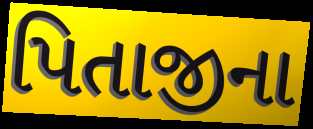
પિતાજીના